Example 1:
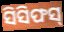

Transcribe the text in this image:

ସିସିଫସ୍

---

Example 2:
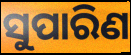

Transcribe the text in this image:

ସୁପାରିଣ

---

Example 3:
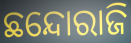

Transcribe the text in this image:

ଛନ୍ଦୋରାଜି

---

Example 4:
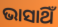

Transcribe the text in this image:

ଭାସାଥିଁ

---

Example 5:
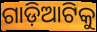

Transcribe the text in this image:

ଗାଡ଼ିଆଟିକୁ